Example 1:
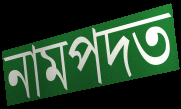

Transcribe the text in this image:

নামপদত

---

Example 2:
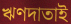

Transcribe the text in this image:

ঋণদাতাই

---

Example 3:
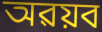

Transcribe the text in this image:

অৱয়ব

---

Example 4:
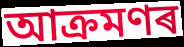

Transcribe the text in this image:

আক্ৰমণৰ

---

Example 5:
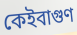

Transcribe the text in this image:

কেইবাগুণ